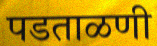
पडताळणी